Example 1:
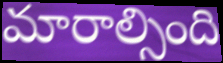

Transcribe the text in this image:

మారాల్సింది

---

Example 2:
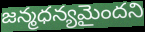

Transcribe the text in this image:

జన్మధన్యమైందని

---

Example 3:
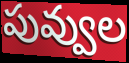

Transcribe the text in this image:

పువ్వుల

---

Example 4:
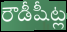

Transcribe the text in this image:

రౌడీషీట్ల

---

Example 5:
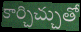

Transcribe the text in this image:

కార్చిచ్చుతో